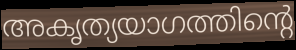
അകൃത്യയാഗത്തിന്റെ